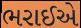
ભરાઈએ